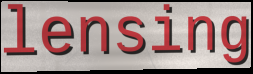
lensing